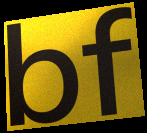
bf